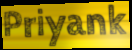
Priyank